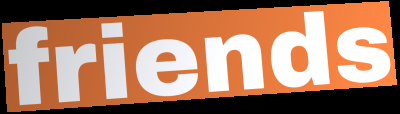
friends